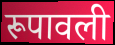
रूपावली